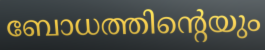
ബോധത്തിന്റെയും